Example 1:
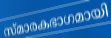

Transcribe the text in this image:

സ്മാരകഭാഗമായി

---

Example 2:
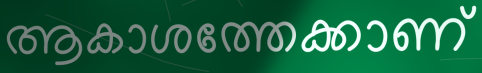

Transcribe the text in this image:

ആകാശത്തേക്കാണ്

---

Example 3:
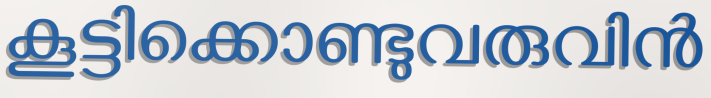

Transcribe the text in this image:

കൂട്ടിക്കൊണ്ടുവരുവിൻ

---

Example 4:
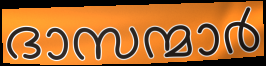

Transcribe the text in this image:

ദാസന്മാർ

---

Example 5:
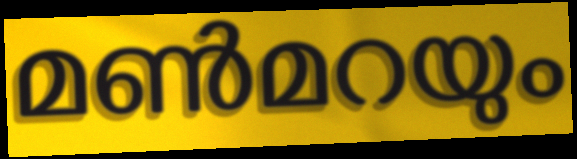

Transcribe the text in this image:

മൺമറയും